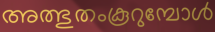
അത്ഭുതംകൂറുമ്പോൾ